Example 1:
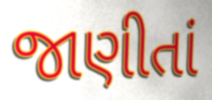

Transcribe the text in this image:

જાણીતાં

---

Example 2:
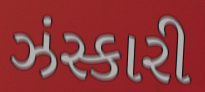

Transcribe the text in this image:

ઝંસ્કારી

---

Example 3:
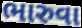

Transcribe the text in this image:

ભારુવા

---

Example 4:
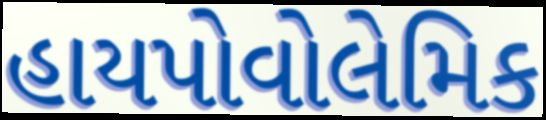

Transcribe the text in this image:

હાયપોવોલેમિક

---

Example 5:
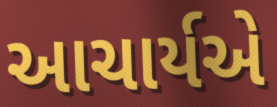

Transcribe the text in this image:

આચાર્યએ